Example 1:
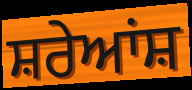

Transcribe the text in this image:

ਸ਼ਰੇਆਂਸ਼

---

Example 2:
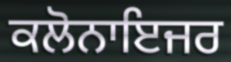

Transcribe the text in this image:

ਕਲੋਨਾਇਜਰ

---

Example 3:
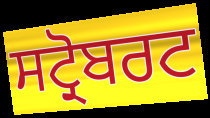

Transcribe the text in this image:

ਸਟ੍ਰੋਬਰਟ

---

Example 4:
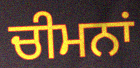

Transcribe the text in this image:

ਚੀਮਨਾਂ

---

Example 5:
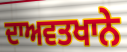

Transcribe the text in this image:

ਦਾਅਵਤਖਾਨੇ